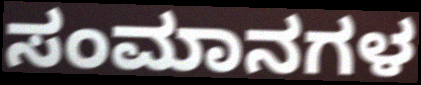
ಸಂಮಾನಗಳ